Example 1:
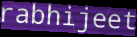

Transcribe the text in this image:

rabhijeet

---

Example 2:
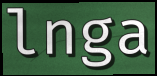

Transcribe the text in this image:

lnga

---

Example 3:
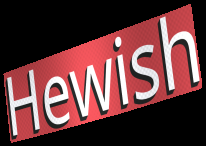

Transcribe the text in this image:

Hewish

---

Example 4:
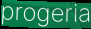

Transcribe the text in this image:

progeria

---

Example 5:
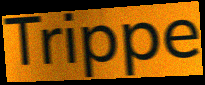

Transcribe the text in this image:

Trippe